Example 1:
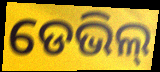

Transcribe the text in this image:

ଡେଭିଲ୍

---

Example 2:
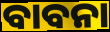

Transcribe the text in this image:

ବାବନା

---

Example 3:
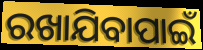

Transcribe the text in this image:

ରଖାଯିବାପାଇଁ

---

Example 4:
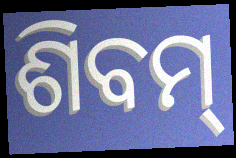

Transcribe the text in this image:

ଶିବମ୍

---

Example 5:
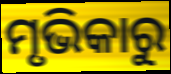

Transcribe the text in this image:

ମୃଭିକାରୁ